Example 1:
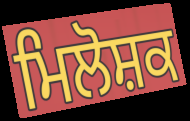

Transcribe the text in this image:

ਮਿਲੋਸ਼ਕ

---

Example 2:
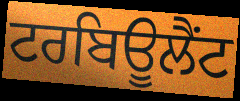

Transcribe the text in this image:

ਟਰਬਿਊਲੈਂਟ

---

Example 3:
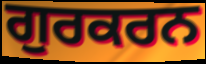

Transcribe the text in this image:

ਗੁਰਕਰਨ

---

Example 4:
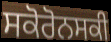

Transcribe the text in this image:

ਸਕੋਰੋਨਸਕੀ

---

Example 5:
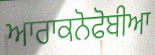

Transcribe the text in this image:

ਆਰਾਕਨੋਫੋਬੀਆ